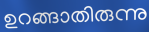
ഉറങ്ങാതിരുന്നു